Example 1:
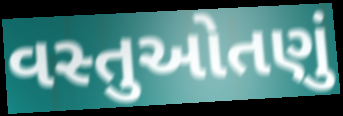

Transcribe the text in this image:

વસ્તુઓતણું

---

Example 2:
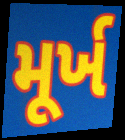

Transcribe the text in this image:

મૂર્ખ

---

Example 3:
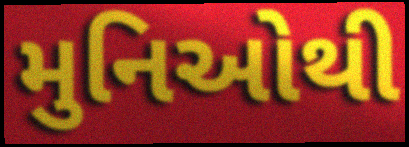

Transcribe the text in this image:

મુનિઓથી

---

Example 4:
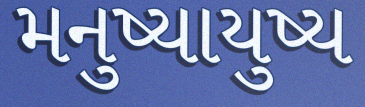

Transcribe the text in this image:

મનુષ્યાયુષ્ય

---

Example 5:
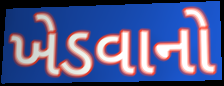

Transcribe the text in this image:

ખેડવાનો